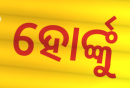
ହୋର୍ଙ୍କୁ